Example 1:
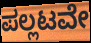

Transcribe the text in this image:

ಪಲ್ಲಟವೇ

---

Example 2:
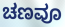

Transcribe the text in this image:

ಚಣವೂ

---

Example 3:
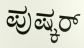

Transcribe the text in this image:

ಪುಷ್ಕರ್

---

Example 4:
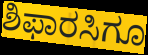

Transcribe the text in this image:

ಶಿಫಾರಸಿಗೂ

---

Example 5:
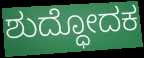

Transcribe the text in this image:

ಶುದ್ಧೋದಕ